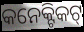
କନେକ୍ଟିକଟ୍